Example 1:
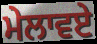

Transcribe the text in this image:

ਮੇਲਾਵਏ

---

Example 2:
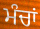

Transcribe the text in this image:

ਮੰਚਾਂ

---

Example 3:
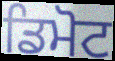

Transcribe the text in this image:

ਡਿਮੋਟ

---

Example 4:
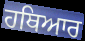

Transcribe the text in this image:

ਹਥਿਆਰ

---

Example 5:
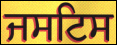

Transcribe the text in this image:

ਜਸਟਿਸ